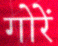
गोरें